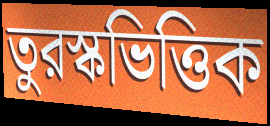
তুরস্কভিত্তিক